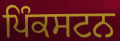
ਪਿੰਕਸਟਨ